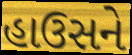
હાઉસને